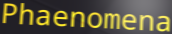
Phaenomena